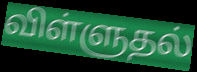
விள்ளுதல்